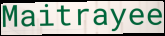
Maitrayee